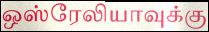
ஒஸ்ரேலியாவுக்கு